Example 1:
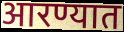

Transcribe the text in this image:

आरण्यात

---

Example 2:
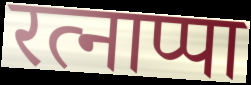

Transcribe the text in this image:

रत्नाप्पा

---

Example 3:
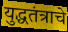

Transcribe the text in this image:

युद्धतंत्राचे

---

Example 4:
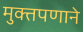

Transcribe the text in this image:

मुक्तपणाने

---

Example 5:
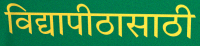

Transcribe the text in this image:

विद्यापीठासाठी